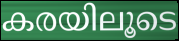
കരയിലൂടെ